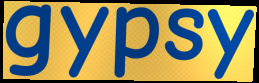
gypsy